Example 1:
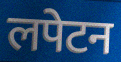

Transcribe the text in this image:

लपेटन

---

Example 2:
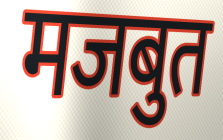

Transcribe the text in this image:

मजबुत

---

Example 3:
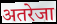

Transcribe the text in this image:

अतरेजा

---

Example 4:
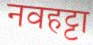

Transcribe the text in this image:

नवहट्टा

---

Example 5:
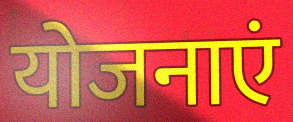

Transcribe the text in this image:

योजनाएं